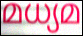
മധ്യമ